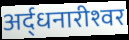
अर्द्धनारीश्वर